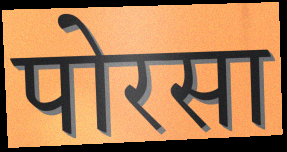
पोरसा